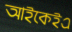
আইকেইএ